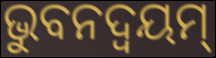
ଭୁବନଦ୍ଵୟମ୍